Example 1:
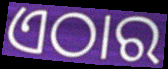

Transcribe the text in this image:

ଏଠାର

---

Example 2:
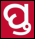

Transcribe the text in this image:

ପ୍ତ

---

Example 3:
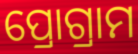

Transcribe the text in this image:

ପ୍ରୋଗ୍ରାମ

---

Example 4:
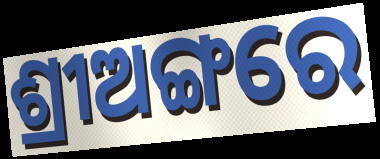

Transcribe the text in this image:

ଶ୍ରୀଅଙ୍ଗରେ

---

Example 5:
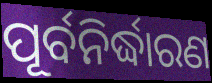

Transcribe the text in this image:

ପୂର୍ବନିର୍ଦ୍ଧାରଣ